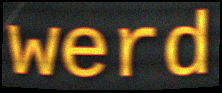
werd